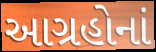
આગ્રહોનાં